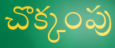
చొక్కంపు